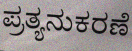
ಪ್ರತ್ಯನುಕರಣೆ